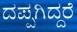
ದಪ್ಪಗಿದ್ದರೆ